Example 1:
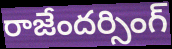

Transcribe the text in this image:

రాజేందర్సింగ్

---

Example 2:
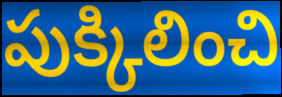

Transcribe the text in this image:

పుక్కిలించి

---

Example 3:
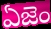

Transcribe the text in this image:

ఏజెం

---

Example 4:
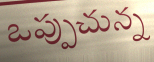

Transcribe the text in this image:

ఒప్పుచున్న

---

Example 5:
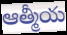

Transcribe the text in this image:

ఆత్మీయ